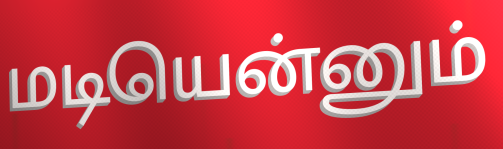
மடியென்னும்